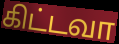
கிட்டவா